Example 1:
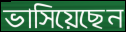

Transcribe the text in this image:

ভাসিয়েছেন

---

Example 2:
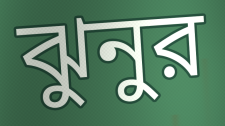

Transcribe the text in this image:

ঝুনুর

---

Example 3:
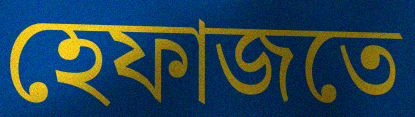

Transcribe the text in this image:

হেফাজতে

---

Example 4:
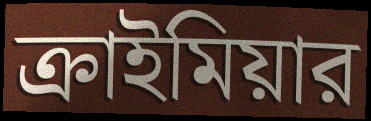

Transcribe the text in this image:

ক্রাইমিয়ার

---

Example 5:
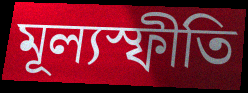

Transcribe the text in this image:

মূল্যস্ফীতি